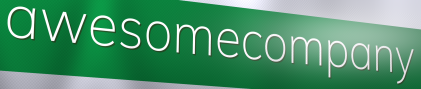
awesomecompany